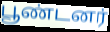
பூண்டனர்